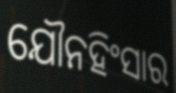
ଯୌନହିଂସାର